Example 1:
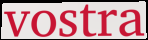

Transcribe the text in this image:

vostra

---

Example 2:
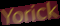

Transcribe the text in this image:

Yorick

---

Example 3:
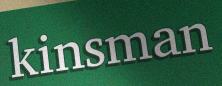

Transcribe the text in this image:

kinsman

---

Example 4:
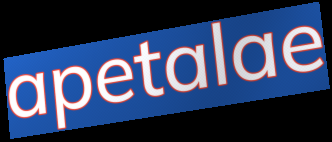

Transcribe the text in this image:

apetalae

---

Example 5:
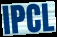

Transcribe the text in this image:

IPCL